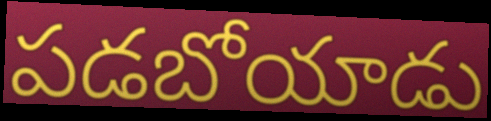
పడబోయాడు